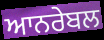
ਆਨਰੇਬਲ